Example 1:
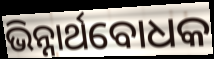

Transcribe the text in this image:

ଭିନ୍ନାର୍ଥବୋଧକ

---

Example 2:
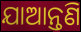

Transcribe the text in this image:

ଯାଆନ୍ତଣି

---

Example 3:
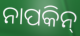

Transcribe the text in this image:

ନାପକିନ୍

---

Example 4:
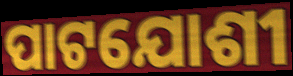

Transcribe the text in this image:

ପାଟଯୋଶୀ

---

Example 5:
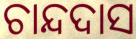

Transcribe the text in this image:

ଚାନ୍ଦଦାସ